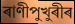
ৰাণীপুখুৰীৰ